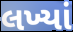
લખ્યાં